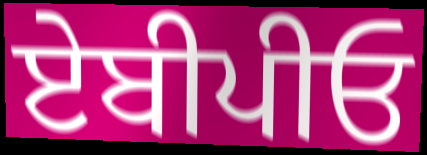
ਏਬੀਪੀਓ